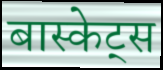
बास्केट्स